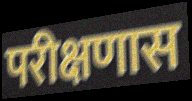
परीक्षणास